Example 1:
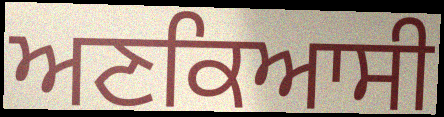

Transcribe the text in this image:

ਅਣਕਿਆਸੀ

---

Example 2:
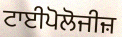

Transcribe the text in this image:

ਟਾਈਪੋਲੋਜੀਜ਼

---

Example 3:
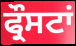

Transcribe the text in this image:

ਫ੍ਰੌਸਟਾਂ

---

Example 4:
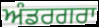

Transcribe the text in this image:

ਅੰਡਰਗਰਾ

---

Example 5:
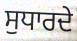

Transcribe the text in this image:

ਸੁਧਾਰਦੇ